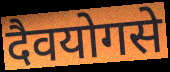
दैवयोगसे